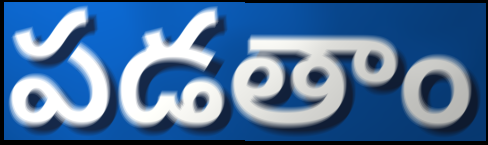
పడతాం